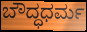
ಬೌದ್ಧಧರ್ಮ